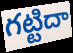
గట్టిదా